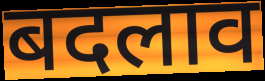
बदलाव